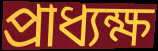
প্রাধ্যক্ষ